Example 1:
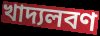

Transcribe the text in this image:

খাদ্যলবণ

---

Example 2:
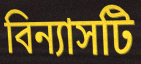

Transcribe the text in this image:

বিন্যাসটি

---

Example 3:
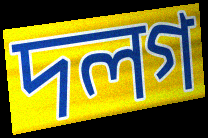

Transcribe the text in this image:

দলগ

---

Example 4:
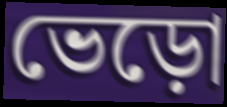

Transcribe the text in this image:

ভেড়ো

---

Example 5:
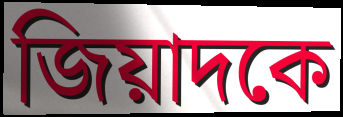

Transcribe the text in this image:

জিয়াদকে